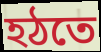
হঠতে